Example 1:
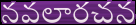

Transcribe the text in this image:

నవలారచన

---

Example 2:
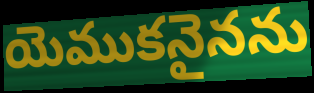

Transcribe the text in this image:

యెముకనైనను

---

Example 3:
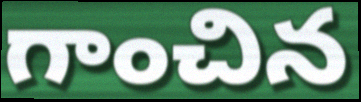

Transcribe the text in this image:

గాంచిన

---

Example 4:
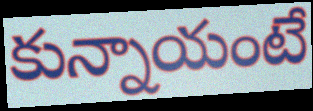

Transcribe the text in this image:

కున్నాయంటే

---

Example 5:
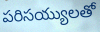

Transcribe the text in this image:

పరిసయ్యులతో